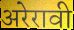
अरेरावी